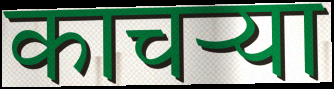
काचऱ्या